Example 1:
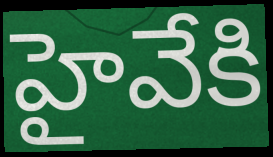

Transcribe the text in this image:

హైవేకి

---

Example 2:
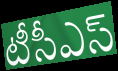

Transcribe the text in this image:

టీసీఎస్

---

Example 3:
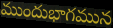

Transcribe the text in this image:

ముందుభాగమున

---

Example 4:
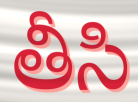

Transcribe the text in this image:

తీసి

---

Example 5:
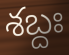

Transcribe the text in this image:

శబ్దః